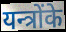
यन्त्रोंके